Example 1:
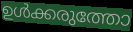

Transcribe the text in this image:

ഉൾക്കരുത്തോ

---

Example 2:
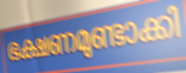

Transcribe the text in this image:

ഭക്ഷണമുണ്ടാക്കി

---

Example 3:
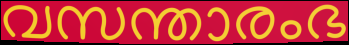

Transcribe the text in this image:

വസന്താരംഭ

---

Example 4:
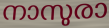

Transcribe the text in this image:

നാസുരാ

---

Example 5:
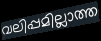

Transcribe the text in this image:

വലിപ്പമില്ലാത്ത